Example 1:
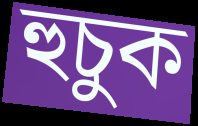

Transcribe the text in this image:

হুচুক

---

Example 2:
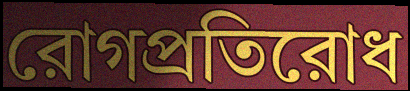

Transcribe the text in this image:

রোগপ্রতিরোধ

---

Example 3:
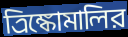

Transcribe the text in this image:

ত্রিঙ্কোমালির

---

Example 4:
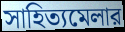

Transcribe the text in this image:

সাহিত্যমেলার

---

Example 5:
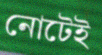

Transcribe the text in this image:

নোটেই